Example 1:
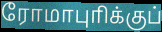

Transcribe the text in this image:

ரோமாபுரிக்குப்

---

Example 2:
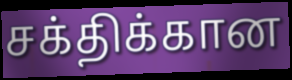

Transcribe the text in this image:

சக்திக்கான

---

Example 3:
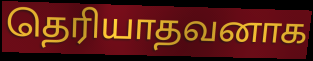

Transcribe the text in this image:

தெரியாதவனாக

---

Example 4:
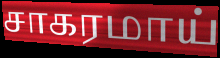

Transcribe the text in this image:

சாகரமாய்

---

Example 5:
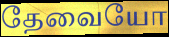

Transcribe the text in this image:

தேவையோ